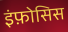
इंफ़ोसिस